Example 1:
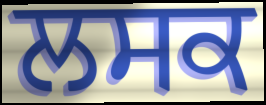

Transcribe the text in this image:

ਲਸਕ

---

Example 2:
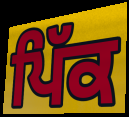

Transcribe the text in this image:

ਪਿੱਕ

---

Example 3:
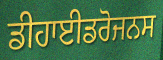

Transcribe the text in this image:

ਡੀਹਾਈਡਰੋਜਨਸ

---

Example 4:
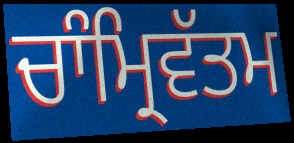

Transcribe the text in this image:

ਚਾੰਮ੍ਰਿਵੱਤਮ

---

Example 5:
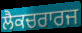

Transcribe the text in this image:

ਲੈਕਚਰਾਰਜ